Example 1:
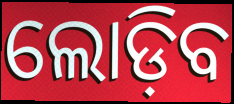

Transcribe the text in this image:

ଲୋଡ଼ିବ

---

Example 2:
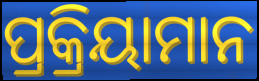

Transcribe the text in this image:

ପ୍ରକ୍ରିୟାମାନ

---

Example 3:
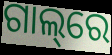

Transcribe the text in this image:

ଗାଲ୍‌ରେ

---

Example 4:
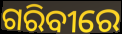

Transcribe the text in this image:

ଗରିବୀରେ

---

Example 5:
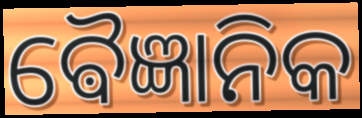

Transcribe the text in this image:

ଵୈଜ୍ଞାନିକ